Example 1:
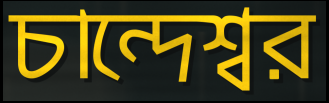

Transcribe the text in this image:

চান্দেশ্বর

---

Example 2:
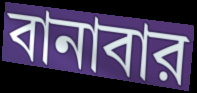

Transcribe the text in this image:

বানাবার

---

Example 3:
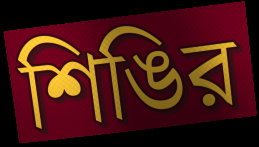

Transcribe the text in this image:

শিঙির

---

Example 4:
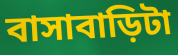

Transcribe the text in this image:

বাসাবাড়িটা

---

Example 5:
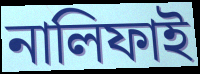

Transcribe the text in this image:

নালিফাই